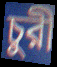
চুরী